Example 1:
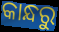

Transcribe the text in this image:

କାନ୍ଧରୁ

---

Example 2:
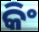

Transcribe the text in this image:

କିଂ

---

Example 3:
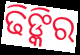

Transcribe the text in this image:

ଢିଙ୍କିର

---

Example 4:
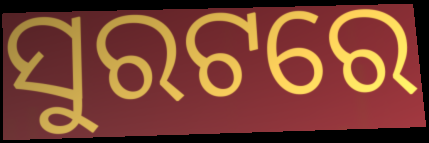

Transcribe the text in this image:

ସୁରଟରେ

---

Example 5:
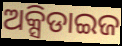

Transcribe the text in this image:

ଅକ୍ସିଡାଇଜ